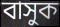
বাসুক